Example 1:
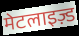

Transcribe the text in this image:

मेटलाइज़्ड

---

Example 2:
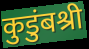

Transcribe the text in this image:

कुडुंबश्री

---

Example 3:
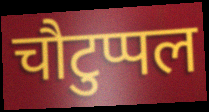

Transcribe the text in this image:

चौटुप्पल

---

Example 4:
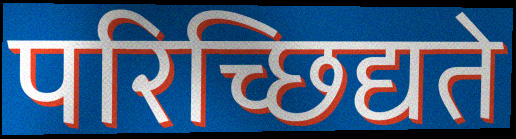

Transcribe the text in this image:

परिच्छिद्यते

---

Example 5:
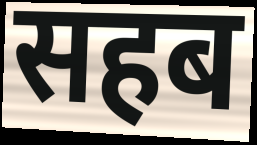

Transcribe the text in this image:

सहब